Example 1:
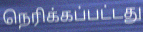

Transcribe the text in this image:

நெரிக்கப்பட்டது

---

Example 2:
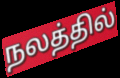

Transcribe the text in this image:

நலத்தில்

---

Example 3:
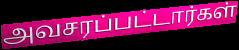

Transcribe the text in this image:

அவசரப்பட்டார்கள்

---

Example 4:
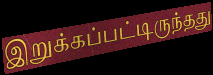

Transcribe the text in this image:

இறுக்கப்பட்டிருந்தது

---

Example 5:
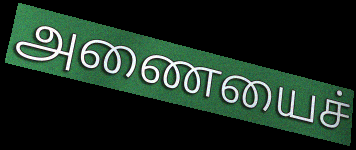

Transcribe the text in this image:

அணையைச்